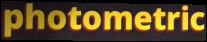
photometric